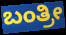
ಬಂತ್ರೀ